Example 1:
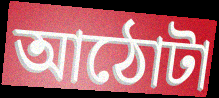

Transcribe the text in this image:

আঠোটা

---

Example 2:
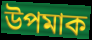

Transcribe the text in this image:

উপমাক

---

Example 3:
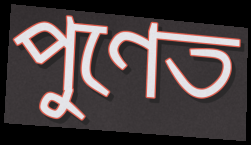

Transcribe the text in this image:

পুণেত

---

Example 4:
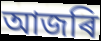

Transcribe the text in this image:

আজৰি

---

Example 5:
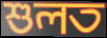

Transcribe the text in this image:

শুলত